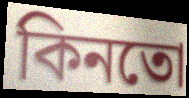
কিনতো